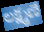
లక్ష్మణే